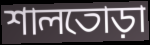
শালতোড়া